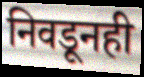
निवडूनही